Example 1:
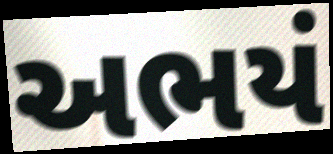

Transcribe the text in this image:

અભયં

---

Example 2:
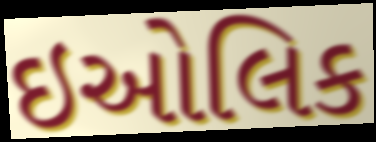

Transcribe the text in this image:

ઇઓલિક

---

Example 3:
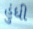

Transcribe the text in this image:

હુંધી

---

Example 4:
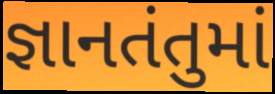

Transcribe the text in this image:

જ્ઞાનતંતુમાં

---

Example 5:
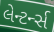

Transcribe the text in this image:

લેન્ટર્ન્સ